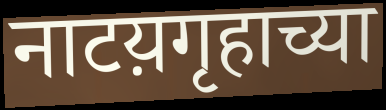
नाटय़गृहाच्या